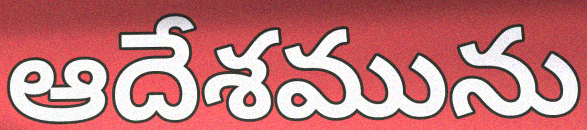
ఆదేశమును